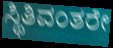
ಸ್ಥಿತಿವಂತರೇ